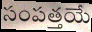
సంపత్తయే